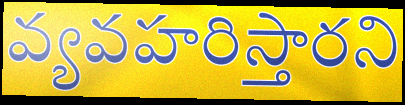
వ్యవహరిస్తారని